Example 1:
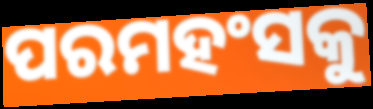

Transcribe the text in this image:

ପରମହଂସକୁ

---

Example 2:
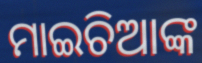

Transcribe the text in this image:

ମାଇଚିଆଙ୍କ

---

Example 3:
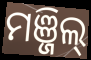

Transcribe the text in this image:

ମଞ୍ଜିଲ୍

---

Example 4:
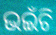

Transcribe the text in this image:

ଭଇଁଚି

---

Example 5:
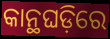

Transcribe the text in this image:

କାନ୍ଥଘଡ଼ିରେ